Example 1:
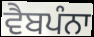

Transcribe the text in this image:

ਵੈਬਪੰਨਾ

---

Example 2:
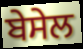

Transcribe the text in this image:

ਬੇਸੇਲ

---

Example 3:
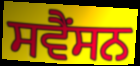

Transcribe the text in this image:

ਸਵੈਂਸਨ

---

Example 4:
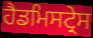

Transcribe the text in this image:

ਹੈਡਮਿਸਟ੍ਰੇਸ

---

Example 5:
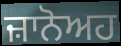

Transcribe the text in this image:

ਜ਼ਾਨੋਅਹ